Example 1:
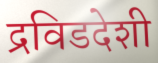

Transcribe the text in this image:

द्रविडदेशी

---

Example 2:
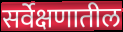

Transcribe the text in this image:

सर्वेक्षणातील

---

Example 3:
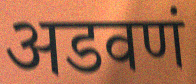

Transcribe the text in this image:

अडवणं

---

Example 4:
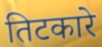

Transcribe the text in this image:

तिटकारे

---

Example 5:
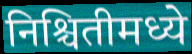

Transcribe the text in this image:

निश्चितीमध्ये